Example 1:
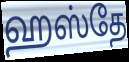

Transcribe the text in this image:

ஹஸ்தே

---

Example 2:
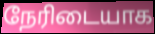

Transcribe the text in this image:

நேரிடையாக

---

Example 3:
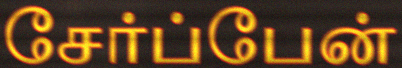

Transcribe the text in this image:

சேர்ப்பேன்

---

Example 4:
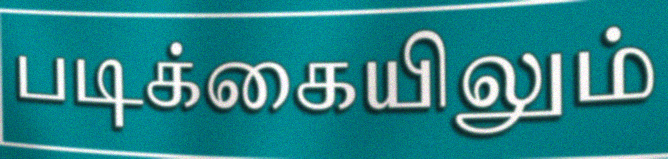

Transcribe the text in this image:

படிக்கையிலும்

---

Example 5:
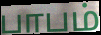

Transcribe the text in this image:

பாபம்